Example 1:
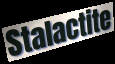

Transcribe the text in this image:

Stalactite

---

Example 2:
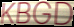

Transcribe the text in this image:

KBGD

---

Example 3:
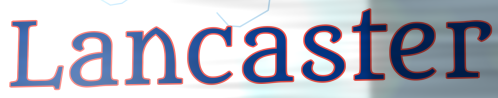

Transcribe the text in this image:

Lancaster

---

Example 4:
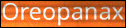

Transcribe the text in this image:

Oreopanax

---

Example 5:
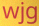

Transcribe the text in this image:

wjg